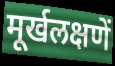
मूर्खलक्षणें